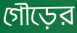
গৌড়ের